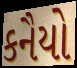
કનૈયો